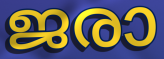
ജരാ